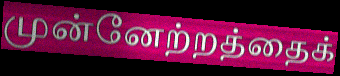
முன்னேற்றத்தைக்